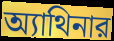
অ্যাথিনার